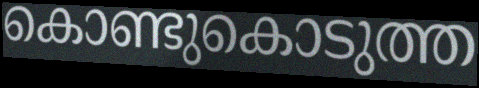
കൊണ്ടുകൊടുത്ത